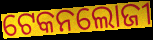
ଟେକନଲୋଜୀ